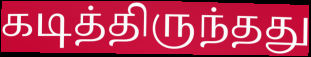
கடித்திருந்தது